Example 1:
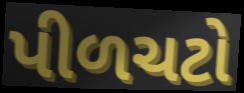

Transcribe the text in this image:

પીળચટો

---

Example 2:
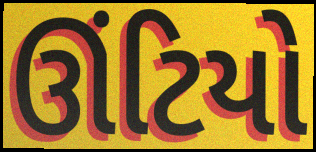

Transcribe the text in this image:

ઊંટિયો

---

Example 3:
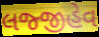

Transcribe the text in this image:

લજ્જીહેવ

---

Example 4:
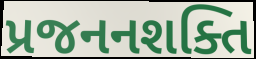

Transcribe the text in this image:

પ્રજનનશક્તિ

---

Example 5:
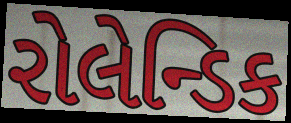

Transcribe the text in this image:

રોલેન્ડિક